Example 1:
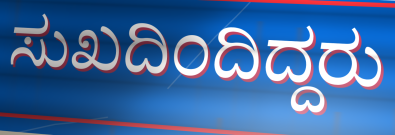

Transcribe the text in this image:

ಸುಖದಿಂದಿದ್ದರು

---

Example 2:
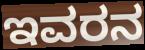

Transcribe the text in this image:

ಇವರನ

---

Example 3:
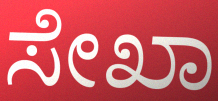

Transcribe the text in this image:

ಸೇಖಾ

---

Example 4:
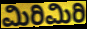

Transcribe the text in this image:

ಮಿರಿಮಿರಿ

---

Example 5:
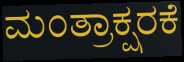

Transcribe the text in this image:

ಮಂತ್ರಾಕ್ಷರಕೆ